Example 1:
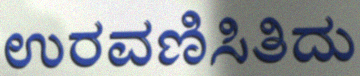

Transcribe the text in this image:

ಉರವಣಿಸಿತಿದು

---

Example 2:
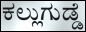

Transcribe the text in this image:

ಕಲ್ಲುಗುಡ್ಡೆ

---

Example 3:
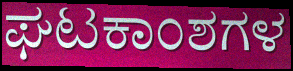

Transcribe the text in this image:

ಘಟಕಾಂಶಗಳ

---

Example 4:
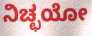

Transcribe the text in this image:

ನಿಚ್ಛಯೋ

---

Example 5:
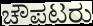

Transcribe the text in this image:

ಚೌಪಟರು